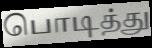
பொடித்து